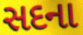
સદના